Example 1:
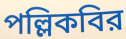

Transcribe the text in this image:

পল্লিকবির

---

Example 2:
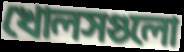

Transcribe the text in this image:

খোলসগুলো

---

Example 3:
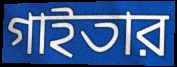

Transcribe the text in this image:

গাইতার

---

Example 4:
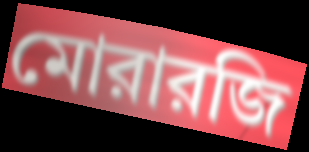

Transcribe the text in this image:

মোরারজি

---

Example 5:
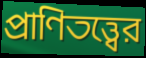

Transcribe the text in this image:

প্রাণিতত্ত্বের